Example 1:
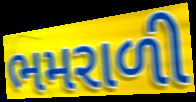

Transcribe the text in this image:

ભમરાળી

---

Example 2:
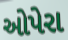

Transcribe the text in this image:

ઓપેરા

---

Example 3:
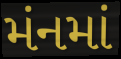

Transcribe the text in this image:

મંનમાં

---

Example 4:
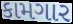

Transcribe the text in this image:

કામગાર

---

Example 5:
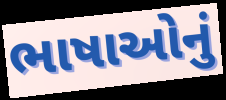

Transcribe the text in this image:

ભાષાઓનું